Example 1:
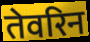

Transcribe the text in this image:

तेवरिन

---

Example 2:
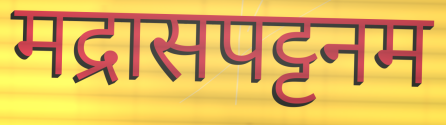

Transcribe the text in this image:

मद्रासपट्टनम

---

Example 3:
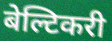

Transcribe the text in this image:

बेल्टिकरी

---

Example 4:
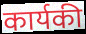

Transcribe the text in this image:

कार्यकी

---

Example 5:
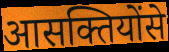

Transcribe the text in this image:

आसक्तियोंसे